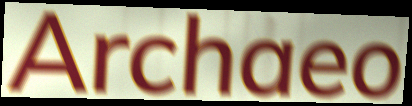
Archaeo